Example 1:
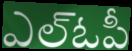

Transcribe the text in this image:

ఎల్ఓపీ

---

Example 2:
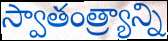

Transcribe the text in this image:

స్వాతంత్ర్యాన్ని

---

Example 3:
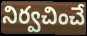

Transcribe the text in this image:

నిర్వచించే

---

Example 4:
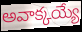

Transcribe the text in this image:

అవాక్కయ్యే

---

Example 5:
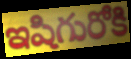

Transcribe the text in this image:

ఇషిగురోకి